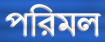
পরিমল